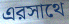
এরসাথে